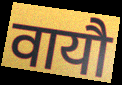
वायौ